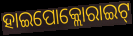
ହାଇପୋକ୍ଲୋରାଇଟ୍